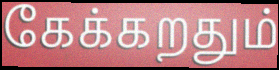
கேக்கறதும்